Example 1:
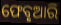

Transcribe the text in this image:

ଫେବୃଆରି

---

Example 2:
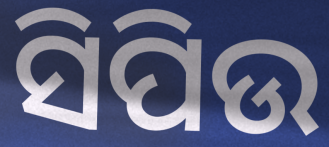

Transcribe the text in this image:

ସିପିଉ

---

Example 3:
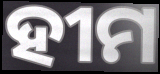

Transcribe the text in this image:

ହୀମ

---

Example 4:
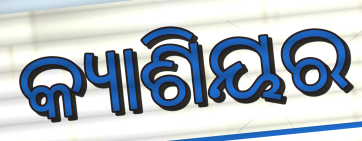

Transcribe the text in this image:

କ୍ୟାଶିୟର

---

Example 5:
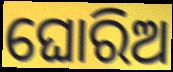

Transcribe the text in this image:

ଘୋରିଅ